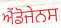
ਐਂਡੋਜੇਨਸ